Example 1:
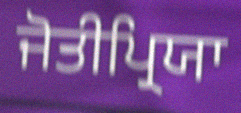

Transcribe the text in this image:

ਜੋਤੀਪ੍ਰਿਯਾ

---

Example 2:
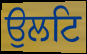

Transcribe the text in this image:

ਉਲਟਿ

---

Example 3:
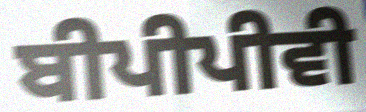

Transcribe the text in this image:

ਬੀਪੀਪੀਵੀ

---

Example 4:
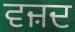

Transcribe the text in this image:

ਵਜ਼ਦ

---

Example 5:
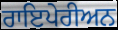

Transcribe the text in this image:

ਰਾਇਪੇਰੀਅਨ